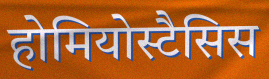
होमियोस्टैसिस